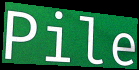
Pile